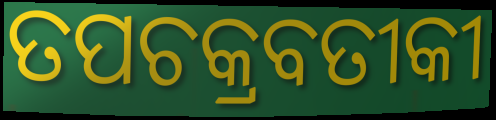
ତପଚକ୍ରବତୀକୀ